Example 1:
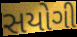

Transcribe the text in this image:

સયોગી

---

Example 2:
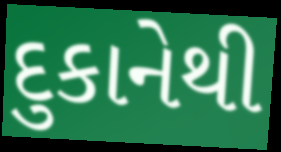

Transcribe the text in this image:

દુકાનેથી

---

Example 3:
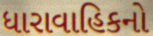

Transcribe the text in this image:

ધારાવાહિકનો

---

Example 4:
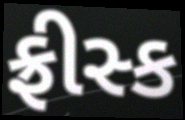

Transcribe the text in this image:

ફ્રીસ્ક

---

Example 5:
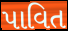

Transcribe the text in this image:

પાવિત